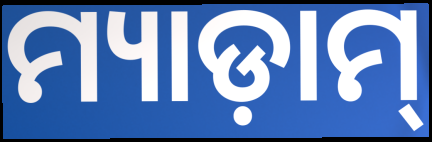
ମ୍ୟାଡ଼ାମ୍